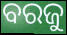
ବରଜୁ